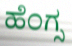
ಹೆಂಗ್ಸ